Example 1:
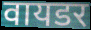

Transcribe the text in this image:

वायडर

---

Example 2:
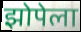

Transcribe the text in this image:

झोपेला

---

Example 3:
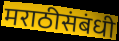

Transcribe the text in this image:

मराठीसंबंधी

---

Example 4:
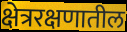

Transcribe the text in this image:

क्षेत्ररक्षणातील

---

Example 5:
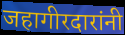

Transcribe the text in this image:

जहागीरदारांनी